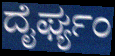
ದೈರ್ಘ್ಯಂ